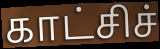
காட்சிச்